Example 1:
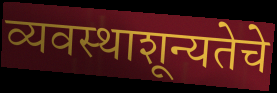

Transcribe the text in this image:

व्यवस्थाशून्यतेचे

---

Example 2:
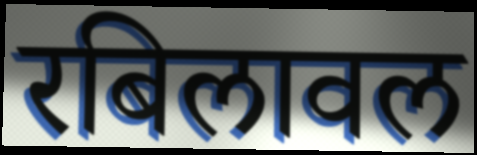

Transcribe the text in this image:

रबिलावल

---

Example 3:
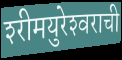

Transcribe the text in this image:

श्रीमयुरेश्वराची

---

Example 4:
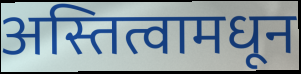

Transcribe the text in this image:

अस्तित्वामधून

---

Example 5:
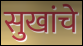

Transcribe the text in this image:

सुखांचे